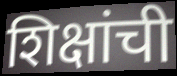
शिक्षांची